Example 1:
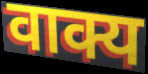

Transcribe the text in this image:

वाक्य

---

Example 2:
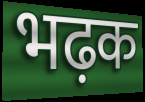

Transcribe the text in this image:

भढ़क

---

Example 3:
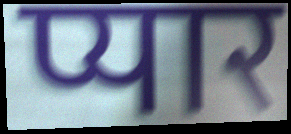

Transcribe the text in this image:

प्‍यार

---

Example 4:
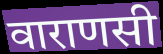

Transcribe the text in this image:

वाराणसी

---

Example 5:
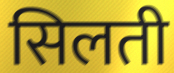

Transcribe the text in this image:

सिलती